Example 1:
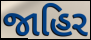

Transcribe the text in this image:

જાહિર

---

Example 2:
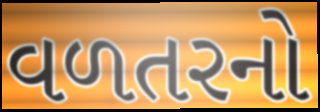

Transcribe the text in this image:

વળતરનો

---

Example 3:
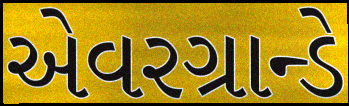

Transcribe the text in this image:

એવરગ્રાન્ડે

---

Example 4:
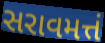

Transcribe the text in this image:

સરાવમત્તં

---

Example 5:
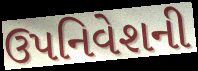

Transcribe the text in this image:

ઉપનિવેશની